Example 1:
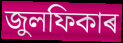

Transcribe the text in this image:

জুলফিকাৰ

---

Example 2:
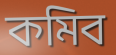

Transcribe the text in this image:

কমিব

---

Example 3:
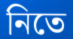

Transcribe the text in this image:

নিতে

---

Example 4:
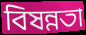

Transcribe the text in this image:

বিষন্নতা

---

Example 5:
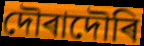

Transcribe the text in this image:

দৌৰাদৌৰি